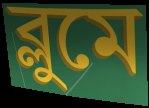
ব্লুমে